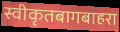
स्वीकृतबागबाहरा